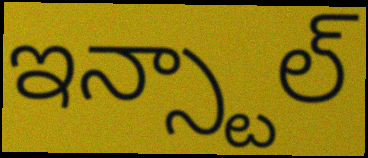
ఇన్స్టాల్